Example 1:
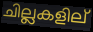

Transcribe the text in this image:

ചില്ലകളില്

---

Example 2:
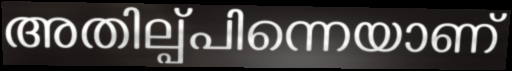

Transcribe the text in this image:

അതില്പ്പിന്നെയാണ്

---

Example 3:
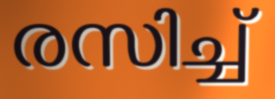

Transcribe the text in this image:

രസിച്ച്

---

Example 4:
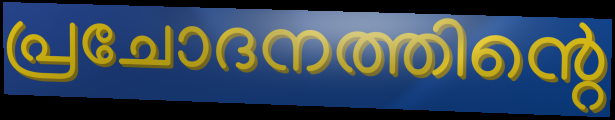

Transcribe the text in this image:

പ്രചോദനത്തിന്റെ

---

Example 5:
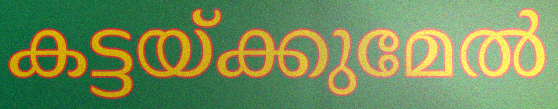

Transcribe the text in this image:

കട്ടയ്ക്കുമേൽ